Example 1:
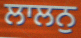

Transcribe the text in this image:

ਲਾਲਨੁ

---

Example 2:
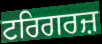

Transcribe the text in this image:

ਟਰਿਗਰਜ਼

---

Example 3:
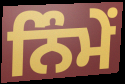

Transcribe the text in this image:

ਨਿੰਮੇਂ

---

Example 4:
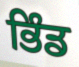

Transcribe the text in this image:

ਭਿੰਡ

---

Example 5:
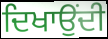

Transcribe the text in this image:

ਦਿਖਾਉਂਦੀ